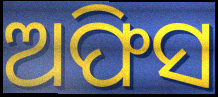
ଅଫିସ